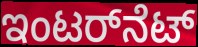
ಇಂಟರ್‌ನೆಟ್